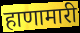
हाणामारी